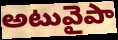
అటువైపా